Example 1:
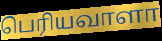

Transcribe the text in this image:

பெரியவாளா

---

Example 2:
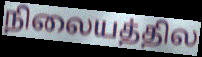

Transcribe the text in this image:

நிலையத்தில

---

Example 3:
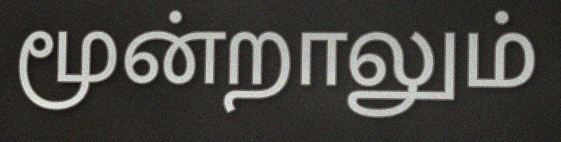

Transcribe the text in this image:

மூன்றாலும்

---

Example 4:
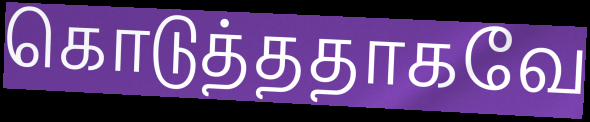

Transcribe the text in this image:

கொடுத்ததாகவே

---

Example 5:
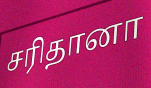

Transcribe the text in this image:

சரிதானா